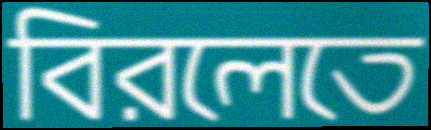
বিরলেতে